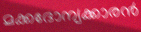
മക്കദോന്യക്കാരൻ